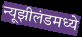
न्यूझीलंडमध्ये